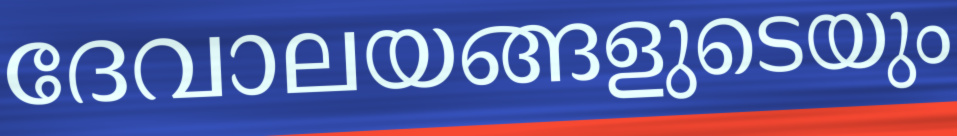
ദേവാലയങ്ങളുടെയും